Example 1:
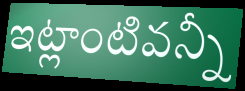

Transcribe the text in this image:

ఇట్లాంటివన్నీ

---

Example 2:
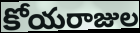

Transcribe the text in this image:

కోయరాజుల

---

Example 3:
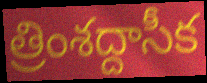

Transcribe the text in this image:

త్రింశద్దాసీక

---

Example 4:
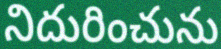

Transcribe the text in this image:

నిదురించును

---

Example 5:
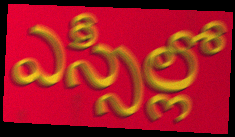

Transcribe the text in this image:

ఎస్సీల్లో